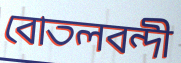
বোতলবন্দী